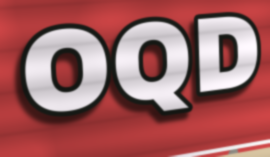
OQD